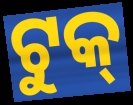
ଟୁକ୍